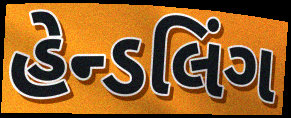
હેન્ડલિંગ